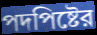
পদপিষ্টের